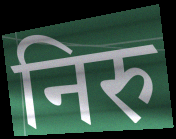
निरु